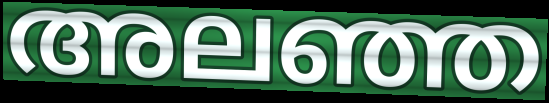
അലഞ്ഞ